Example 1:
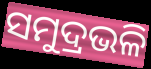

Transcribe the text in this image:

ସମୁଦ୍ରଭଳି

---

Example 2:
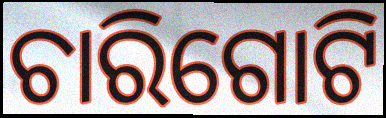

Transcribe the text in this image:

ଚାରିଗୋଟି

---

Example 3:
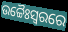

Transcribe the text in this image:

ଉଚ୍ଚୈଃସ୍ୱରରେ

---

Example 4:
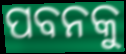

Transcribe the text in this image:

ପବନକୁ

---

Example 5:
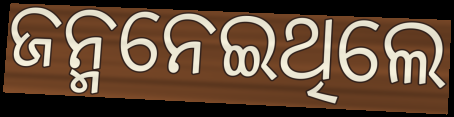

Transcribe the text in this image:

ଜନ୍ମନେଇଥିଲେ